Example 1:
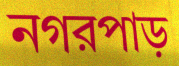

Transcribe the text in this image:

নগরপাড়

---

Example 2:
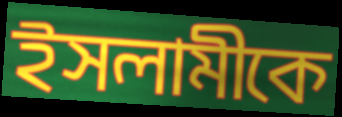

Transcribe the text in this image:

ইসলামীকে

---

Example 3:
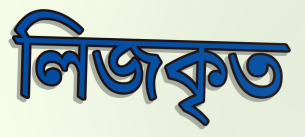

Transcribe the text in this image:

লিজকৃত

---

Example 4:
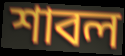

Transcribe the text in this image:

শাবল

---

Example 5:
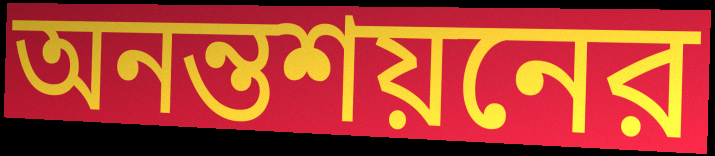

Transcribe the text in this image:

অনন্তশয়নের